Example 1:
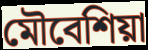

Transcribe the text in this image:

মৌবেশিয়া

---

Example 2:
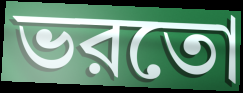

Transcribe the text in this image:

ভরতো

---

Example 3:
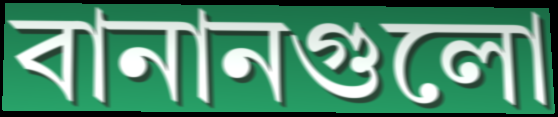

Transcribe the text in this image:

বানানগুলো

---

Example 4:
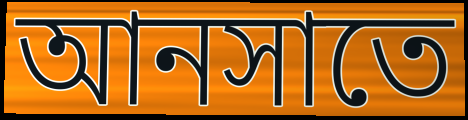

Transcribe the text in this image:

আনসাতে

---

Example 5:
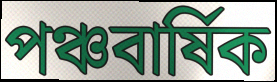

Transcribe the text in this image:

পঞ্চবার্ষিক